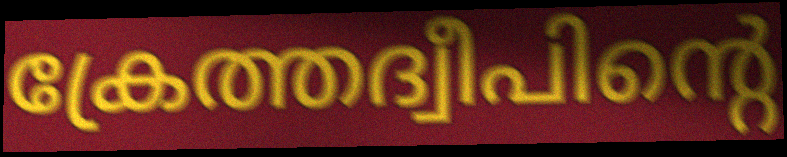
ക്രേത്തദ്വീപിന്റെ